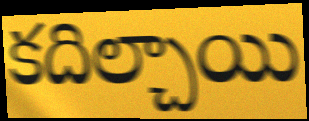
కదిల్చాయి